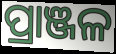
ପ୍ରାଞ୍ଜଳ